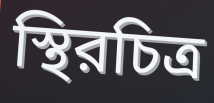
স্থিরচিত্র